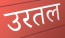
उरतल